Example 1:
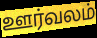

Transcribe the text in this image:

ஊர்வலம்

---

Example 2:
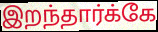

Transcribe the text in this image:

இறந்தார்க்கே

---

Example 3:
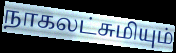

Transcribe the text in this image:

நாகலட்சுமியும்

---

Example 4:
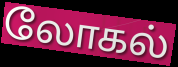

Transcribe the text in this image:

லோகல்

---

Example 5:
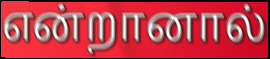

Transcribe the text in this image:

என்றானால்